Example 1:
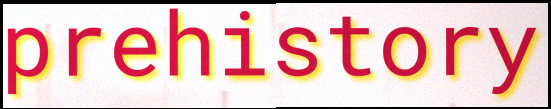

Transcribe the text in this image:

prehistory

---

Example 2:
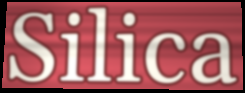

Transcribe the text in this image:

Silica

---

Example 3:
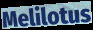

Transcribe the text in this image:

Melilotus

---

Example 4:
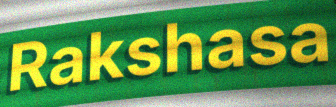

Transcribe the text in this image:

Rakshasa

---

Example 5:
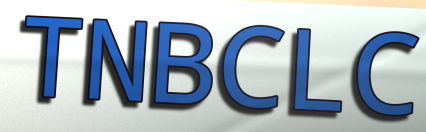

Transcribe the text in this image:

TNBCLC